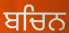
ਬਚਿਨ